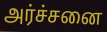
அர்ச்சனை